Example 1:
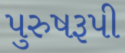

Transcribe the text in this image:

પુરુષરૂપી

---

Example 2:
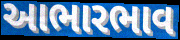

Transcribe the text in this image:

આભારભાવ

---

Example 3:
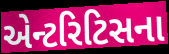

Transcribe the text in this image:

એન્ટરિટિસના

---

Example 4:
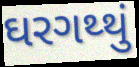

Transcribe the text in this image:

ઘરગથ્થું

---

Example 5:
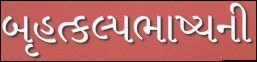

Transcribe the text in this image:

બૃહત્કલ્પભાષ્યની